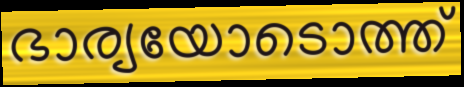
ഭാര്യയോടൊത്ത്